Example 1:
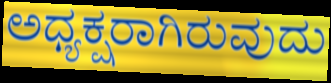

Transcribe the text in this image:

ಅಧ್ಯಕ್ಷರಾಗಿರುವುದು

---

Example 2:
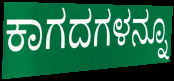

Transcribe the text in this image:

ಕಾಗದಗಳನ್ನೂ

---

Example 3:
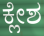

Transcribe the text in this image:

ಕ್ಲೇಶ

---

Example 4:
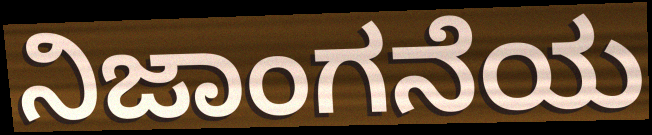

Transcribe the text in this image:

ನಿಜಾಂಗನೆಯ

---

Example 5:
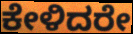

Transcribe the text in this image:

ಕೇಳಿದರೇ